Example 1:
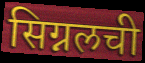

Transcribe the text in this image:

सिग्नलची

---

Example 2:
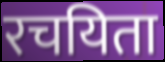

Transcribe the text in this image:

रचयिता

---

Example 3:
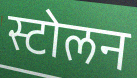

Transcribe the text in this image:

स्टोलन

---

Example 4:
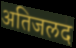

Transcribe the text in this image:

अतिजलद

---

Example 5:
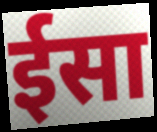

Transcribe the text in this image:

ईसा